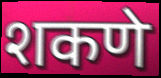
शकणे